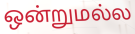
ஒன்றுமல்ல